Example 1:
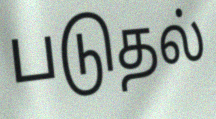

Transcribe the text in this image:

படுதல்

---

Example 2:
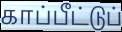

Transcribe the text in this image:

காப்பீட்டுப்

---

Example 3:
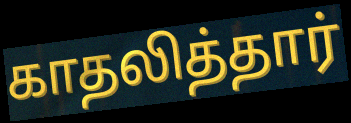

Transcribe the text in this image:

காதலித்தார்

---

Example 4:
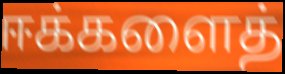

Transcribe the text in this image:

ஈக்களைத்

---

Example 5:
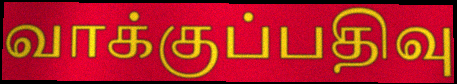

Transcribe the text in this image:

வாக்குப்பதிவு